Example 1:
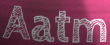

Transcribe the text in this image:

Aatm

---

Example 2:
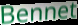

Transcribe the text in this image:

Bennet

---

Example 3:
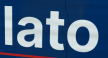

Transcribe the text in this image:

lato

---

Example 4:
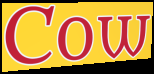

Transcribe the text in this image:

Cow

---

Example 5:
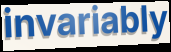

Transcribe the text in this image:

invariably